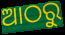
ଆଠରୁ